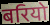
बरियो